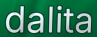
dalita